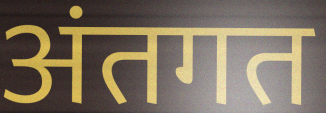
अंतगत